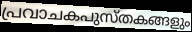
പ്രവാചകപുസ്തകങ്ങളും